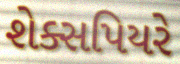
શેક્સપિયરે